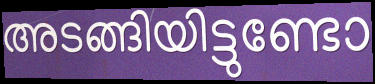
അടങ്ങിയിട്ടുണ്ടോ